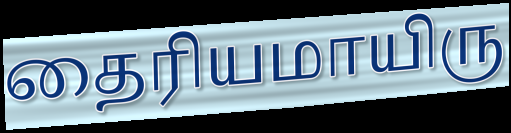
தைரியமாயிரு